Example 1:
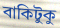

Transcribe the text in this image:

বাকিটুকু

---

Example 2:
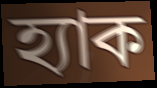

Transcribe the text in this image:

হ্যাক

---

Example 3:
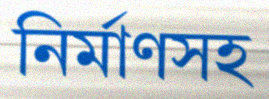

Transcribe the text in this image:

নির্মাণসহ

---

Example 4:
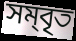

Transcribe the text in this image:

সম্‌বৃত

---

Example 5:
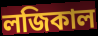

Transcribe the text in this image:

লজিকাল